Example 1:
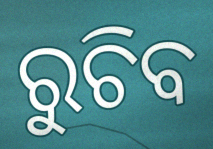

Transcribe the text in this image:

ରୁଚିବ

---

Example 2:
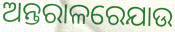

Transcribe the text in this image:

ଅନ୍ତରାଳରେଯାଉ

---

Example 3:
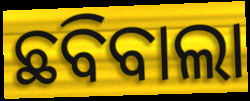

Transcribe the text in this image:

ଛବିବାଲା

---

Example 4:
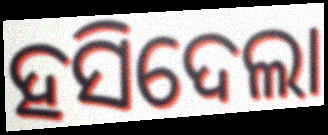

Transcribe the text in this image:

ହସିଦେଲା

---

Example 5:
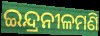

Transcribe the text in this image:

ଇନ୍ଦ୍ରନୀଳମଣି